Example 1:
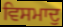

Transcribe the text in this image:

ਵਿਸਮਾਦੁ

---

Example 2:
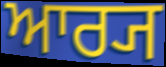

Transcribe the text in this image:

ਆਰ੍ਯ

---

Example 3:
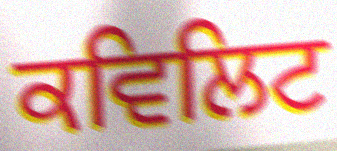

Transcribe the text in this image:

ਕਵਿਲਿਟ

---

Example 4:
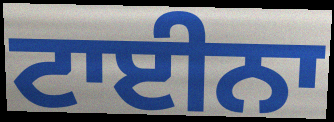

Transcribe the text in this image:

ਟਾਈਨਾ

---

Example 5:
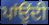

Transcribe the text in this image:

ਪਾਂਉਂਦੀ